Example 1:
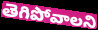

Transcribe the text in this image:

తెగిపోవాలని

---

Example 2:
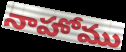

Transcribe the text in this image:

నాహోము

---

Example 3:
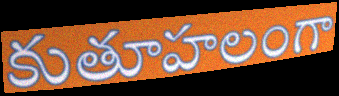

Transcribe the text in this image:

కుతూహలంగా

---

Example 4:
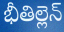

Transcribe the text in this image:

భీతిల్లెన్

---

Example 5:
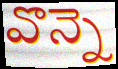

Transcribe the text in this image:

వొన్నె